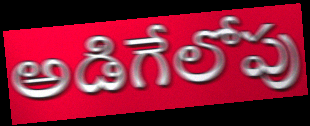
అడిగేలోపు